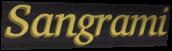
Sangrami